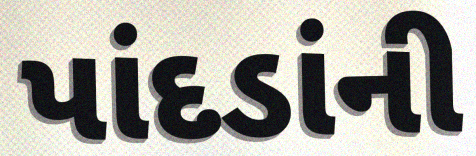
પાંદડાંની